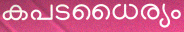
കപടധൈര്യം